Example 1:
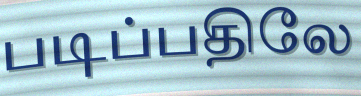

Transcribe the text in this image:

படிப்பதிலே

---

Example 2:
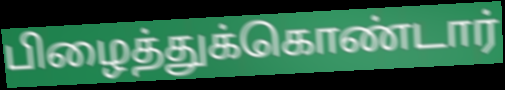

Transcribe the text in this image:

பிழைத்துக்கொண்டார்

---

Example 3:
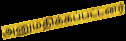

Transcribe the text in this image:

அனுமதிக்கப்பட்டனர்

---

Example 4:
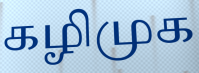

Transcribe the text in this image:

கழிமுக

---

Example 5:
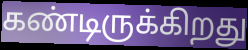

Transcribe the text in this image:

கண்டிருக்கிறது